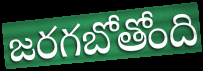
జరగబోతోంది